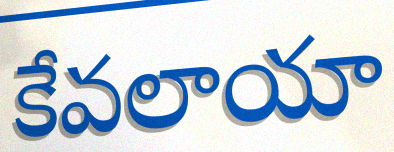
కేవలాయా